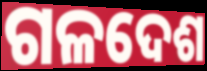
ଗଳଦେଶ